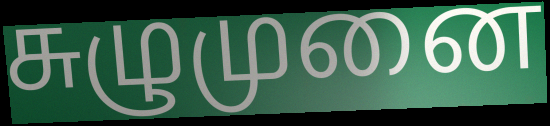
சுழுமுனை